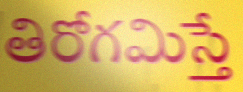
తిరోగమిస్తే